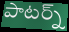
పాటర్న్